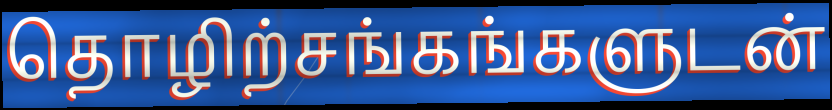
தொழிற்சங்கங்களுடன்